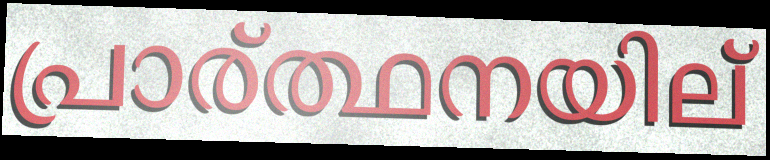
പ്രാര്ത്ഥനയില്